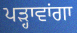
ਪੜ੍ਹਾਵਾਂਗਾ